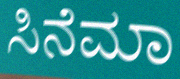
ಸಿನೆಮಾ